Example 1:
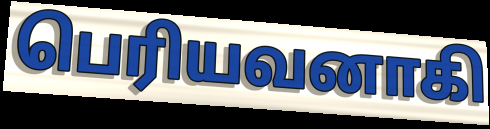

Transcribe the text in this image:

பெரியவனாகி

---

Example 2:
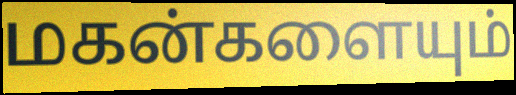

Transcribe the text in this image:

மகன்களையும்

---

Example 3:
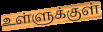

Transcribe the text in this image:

உள்ளுக்குள்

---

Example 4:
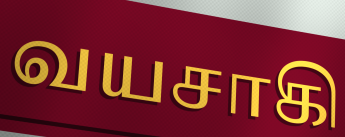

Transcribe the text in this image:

வயசாகி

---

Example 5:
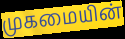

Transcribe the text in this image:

முகமையின்